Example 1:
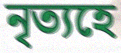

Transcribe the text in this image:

নৃত্যহে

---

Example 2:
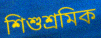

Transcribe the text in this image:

শিশুশ্ৰমিক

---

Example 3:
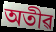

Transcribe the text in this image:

অতীৱ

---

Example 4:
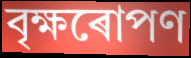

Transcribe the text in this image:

বৃক্ষৰোপণ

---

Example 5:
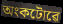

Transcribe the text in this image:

অংকটোৱে